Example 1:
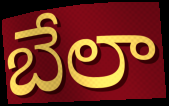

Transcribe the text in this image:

బేలా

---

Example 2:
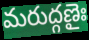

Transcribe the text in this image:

మరుద్గణైః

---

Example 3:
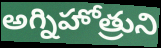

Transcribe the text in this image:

అగ్నిహోత్రుని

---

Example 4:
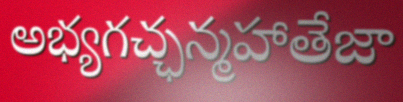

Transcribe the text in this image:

అభ్యగచ్ఛన్మహాతేజా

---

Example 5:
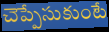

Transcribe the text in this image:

చెప్పేసుకుంటే